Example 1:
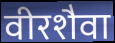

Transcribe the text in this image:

वीरशैवा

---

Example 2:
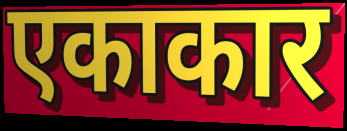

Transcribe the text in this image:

एकाकार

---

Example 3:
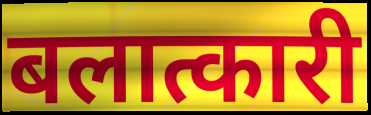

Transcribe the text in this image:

बलात्कारी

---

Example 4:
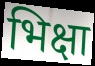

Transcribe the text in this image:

भिक्षा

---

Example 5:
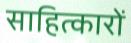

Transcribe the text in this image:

साहित्कारों